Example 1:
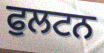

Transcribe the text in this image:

ਫੁਲਟਨ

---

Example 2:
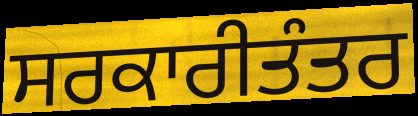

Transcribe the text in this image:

ਸਰਕਾਰੀਤੰਤਰ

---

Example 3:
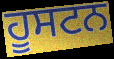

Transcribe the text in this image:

ਹੂਸਟਨ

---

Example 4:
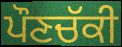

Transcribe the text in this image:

ਪੌਣਚੱਕੀ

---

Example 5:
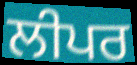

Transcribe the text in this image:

ਲੀਪਰ